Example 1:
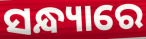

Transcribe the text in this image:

ସନ୍ଧ୍ୟାରେ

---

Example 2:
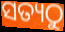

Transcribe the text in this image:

ସତ୍ୟଠୁ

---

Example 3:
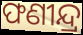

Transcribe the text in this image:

ଫଣୀନ୍ଦ୍ର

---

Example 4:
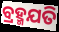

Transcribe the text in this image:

ବ୍ରହ୍ମଯତି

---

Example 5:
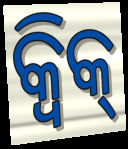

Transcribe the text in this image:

କ୍ୱିକ୍